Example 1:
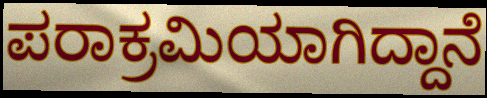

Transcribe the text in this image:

ಪರಾಕ್ರಮಿಯಾಗಿದ್ದಾನೆ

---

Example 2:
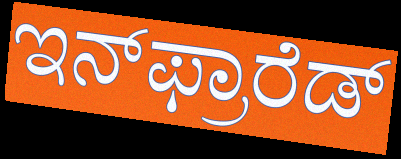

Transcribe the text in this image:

ಇನ್‌ಫ್ರಾರೆಡ್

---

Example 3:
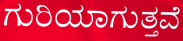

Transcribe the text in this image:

ಗುರಿಯಾಗುತ್ತವೆ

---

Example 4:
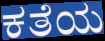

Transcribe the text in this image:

ಕತೆಯ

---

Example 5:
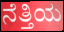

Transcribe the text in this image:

ನೆತ್ತಿಯ